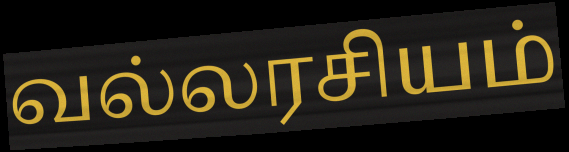
வல்லரசியம்